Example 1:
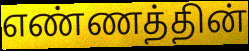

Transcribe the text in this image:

எண்ணத்தின்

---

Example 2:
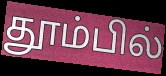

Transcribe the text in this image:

தூம்பில்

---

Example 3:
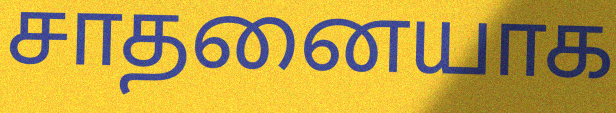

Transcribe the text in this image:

சாதனையாக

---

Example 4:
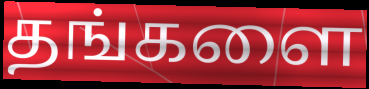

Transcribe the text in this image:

தங்களை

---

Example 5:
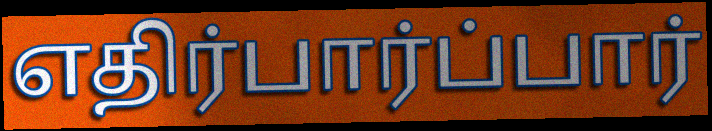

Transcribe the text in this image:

எதிர்பார்ப்பார்